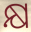
କ୍ଷ